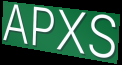
APXS